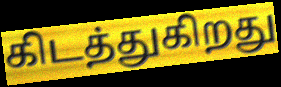
கிடத்துகிறது